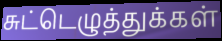
சுட்டெழுத்துக்கள்